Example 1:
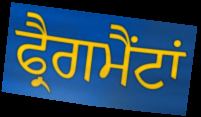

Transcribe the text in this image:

ਫ੍ਰੈਗਮੈਂਟਾਂ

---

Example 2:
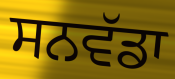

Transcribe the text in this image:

ਸਨਵੱਡਾ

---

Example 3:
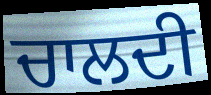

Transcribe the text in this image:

ਚਾਲਦੀ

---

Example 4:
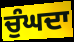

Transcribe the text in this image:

ਚੁੰਘਦਾ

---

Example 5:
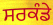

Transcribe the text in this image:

ਸਰਕੰਡੇ